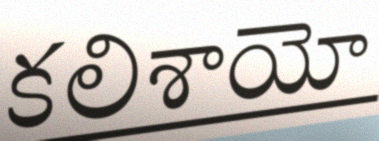
కలిశాయో